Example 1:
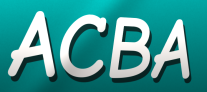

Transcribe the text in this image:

ACBA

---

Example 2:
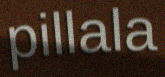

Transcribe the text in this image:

pillala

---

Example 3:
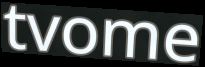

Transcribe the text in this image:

tvome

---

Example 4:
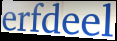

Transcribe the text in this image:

erfdeel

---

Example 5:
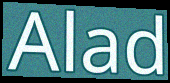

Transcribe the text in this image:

Alad